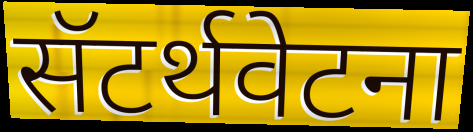
सॅटर्थवेटना